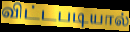
விட்டபடியால்